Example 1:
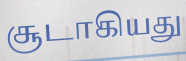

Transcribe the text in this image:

சூடாகியது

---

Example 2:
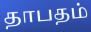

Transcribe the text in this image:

தாபதம்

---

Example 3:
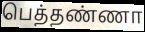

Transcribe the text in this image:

பெத்தண்ணா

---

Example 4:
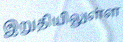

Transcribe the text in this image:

இறுதியிலுள்ள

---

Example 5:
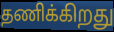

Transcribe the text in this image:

தணிக்கிறது